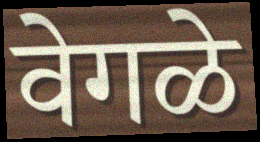
वेगळे